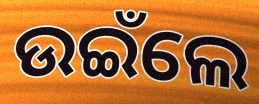
ଉଇଁଲେ